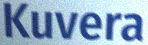
Kuvera